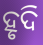
ହୃଦି